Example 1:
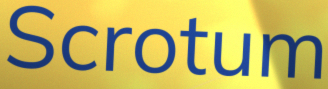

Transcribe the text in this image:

Scrotum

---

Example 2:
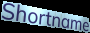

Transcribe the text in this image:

Shortname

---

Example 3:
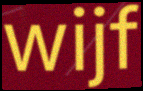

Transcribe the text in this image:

wijf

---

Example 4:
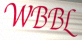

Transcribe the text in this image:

WBBL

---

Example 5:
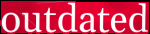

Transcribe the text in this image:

outdated